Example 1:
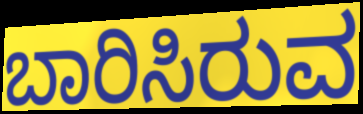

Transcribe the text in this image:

ಬಾರಿಸಿರುವ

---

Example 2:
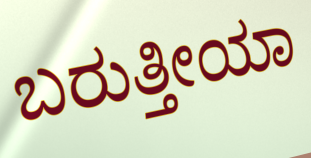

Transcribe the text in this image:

ಬರುತ್ತೀಯಾ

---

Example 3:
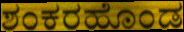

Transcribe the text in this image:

ಶಂಕರಹೊಂಡ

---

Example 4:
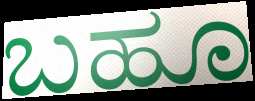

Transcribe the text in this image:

ಬಹೂ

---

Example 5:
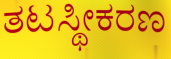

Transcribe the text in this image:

ತಟಸ್ಥೀಕರಣ